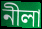
নীলা